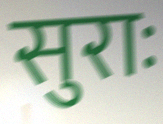
सुराः